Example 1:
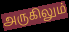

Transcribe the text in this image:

அருகிலும்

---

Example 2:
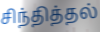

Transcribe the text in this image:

சிந்தித்தல்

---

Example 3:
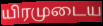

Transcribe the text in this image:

யிரமுடைய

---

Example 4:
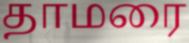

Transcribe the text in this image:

தாமரை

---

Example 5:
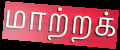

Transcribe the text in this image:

மாற்றக்